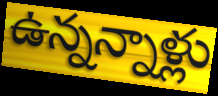
ఉన్నన్నాళ్లు